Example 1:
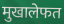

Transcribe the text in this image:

मुखालेफत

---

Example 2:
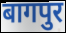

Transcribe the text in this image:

बागपुर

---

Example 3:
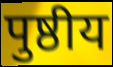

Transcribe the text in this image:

पुष्ठीय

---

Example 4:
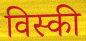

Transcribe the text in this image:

विस्की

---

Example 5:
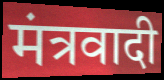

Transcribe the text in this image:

मंत्रवादी